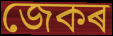
জেকৰ